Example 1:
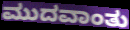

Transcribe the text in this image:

ಮುದವಾಂತು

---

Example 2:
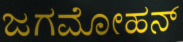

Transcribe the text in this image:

ಜಗಮೋಹನ್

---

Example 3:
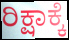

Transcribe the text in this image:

ರಿಕ್ಷಾಕ್ಕೆ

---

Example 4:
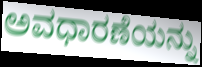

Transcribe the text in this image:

ಅವಧಾರಣೆಯನ್ನು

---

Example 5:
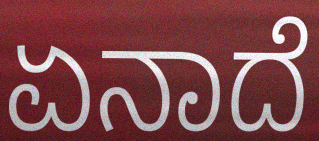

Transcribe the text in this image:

ಏನಾದೆ